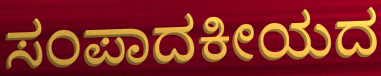
ಸಂಪಾದಕೀಯದ